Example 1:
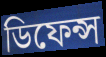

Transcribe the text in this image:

ডিফেন্স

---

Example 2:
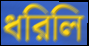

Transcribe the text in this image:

ধরিলি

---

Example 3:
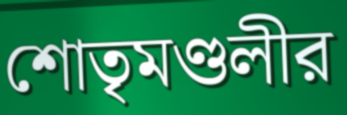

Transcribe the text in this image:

শোতৃমণ্ডলীর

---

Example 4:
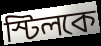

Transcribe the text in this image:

স্টিলকে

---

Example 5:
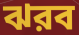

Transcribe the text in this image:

ঝরব